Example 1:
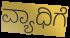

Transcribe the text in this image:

ವ್ಯಾಧಿಗೆ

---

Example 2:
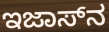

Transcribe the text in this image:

ಇಜಾಸ್‌ನ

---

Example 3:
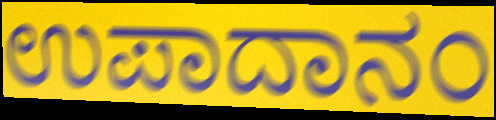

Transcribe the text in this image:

ಉಪಾದಾನಂ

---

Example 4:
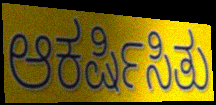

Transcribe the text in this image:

ಆಕರ್ಷಿಸಿತು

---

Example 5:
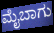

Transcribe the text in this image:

ಮೈಬಾಗು